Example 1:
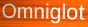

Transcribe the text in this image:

Omniglot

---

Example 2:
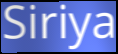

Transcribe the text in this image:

Siriya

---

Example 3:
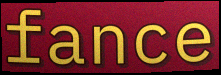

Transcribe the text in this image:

fance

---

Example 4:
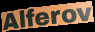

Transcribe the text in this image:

Alferov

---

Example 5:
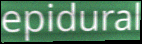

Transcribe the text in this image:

epidural